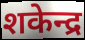
शकेन्द्र